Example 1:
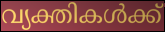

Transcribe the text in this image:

വ്യക്തികൾക്ക്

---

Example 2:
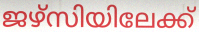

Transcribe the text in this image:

ജഴ്സിയിലേക്ക്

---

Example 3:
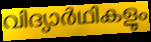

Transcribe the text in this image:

വിദ്യാർഥികളും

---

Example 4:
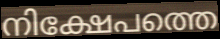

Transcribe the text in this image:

നിക്ഷേപത്തെ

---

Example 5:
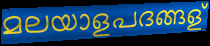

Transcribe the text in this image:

മലയാളപദങ്ങള്